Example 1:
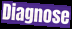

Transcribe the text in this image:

Diagnose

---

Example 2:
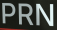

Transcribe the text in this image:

PRN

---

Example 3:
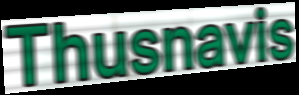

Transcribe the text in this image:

Thusnavis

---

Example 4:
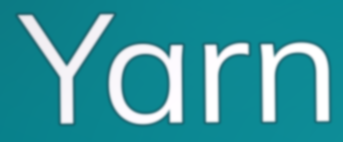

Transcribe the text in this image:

Yarn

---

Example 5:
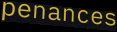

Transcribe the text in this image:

penances